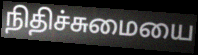
நிதிச்சுமையை